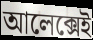
আলেক্সেই